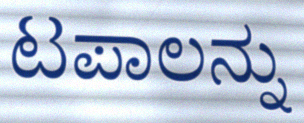
ಟಪಾಲನ್ನು